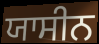
ਯਾਸੀਨ